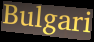
Bulgari